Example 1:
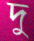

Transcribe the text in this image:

দু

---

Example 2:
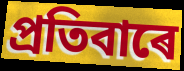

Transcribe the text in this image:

প্ৰতিবাৰে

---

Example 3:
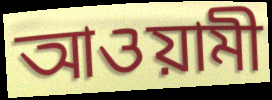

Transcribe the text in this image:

আওয়ামী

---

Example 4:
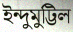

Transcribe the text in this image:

ইন্দুমুট্টিল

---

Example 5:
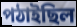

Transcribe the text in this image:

পঠাইছিল